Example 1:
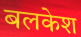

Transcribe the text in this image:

बलकेश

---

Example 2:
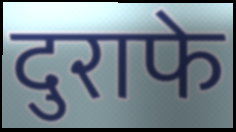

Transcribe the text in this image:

दुराफे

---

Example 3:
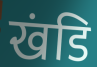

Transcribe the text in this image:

खंडि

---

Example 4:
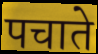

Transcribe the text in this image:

पचाते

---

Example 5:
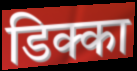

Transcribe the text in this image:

डिक्का